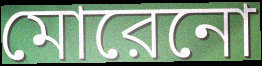
মোরেনো